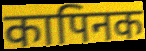
कापिनक